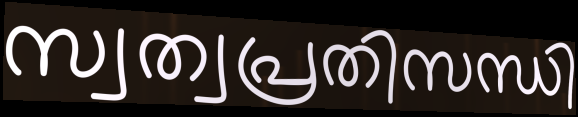
സ്വത്വപ്രതിസന്ധി